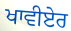
ਖਾਵੀਏਰ